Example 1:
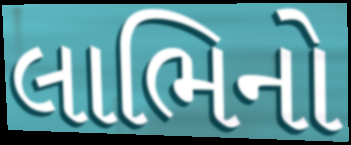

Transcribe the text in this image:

લાભિનો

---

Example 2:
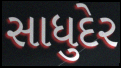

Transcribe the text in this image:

સાધુદેર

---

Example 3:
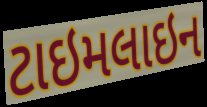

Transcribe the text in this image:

ટાઇમલાઇન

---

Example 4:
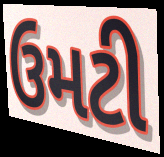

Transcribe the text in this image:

ઉમટી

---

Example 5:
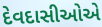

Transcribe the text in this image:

દેવદાસીઓએ